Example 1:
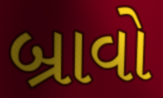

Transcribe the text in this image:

બ્રાવો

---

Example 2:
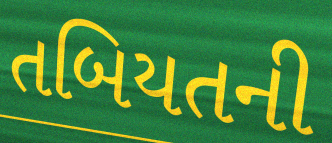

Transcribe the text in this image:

તબિયતની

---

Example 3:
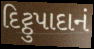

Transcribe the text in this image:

દિટ્ઠુપાદાનં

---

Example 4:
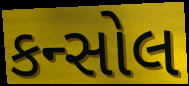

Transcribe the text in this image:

કન્સોલ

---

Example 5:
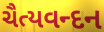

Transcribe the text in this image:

ચૈત્યવન્દન